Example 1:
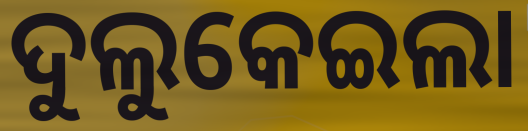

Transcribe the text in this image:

ଦୁଲୁକେଇଲା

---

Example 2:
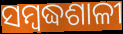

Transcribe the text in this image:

ସମ୍ବଦ୍ଧଶାଳୀ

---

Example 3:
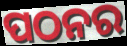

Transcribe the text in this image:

ପଠନର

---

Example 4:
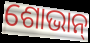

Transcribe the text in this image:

ଶୋଭାନ୍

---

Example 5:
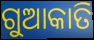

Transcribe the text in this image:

ଗୁଆକାତି